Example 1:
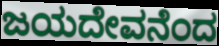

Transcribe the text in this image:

ಜಯದೇವನೆಂದ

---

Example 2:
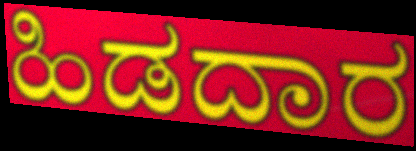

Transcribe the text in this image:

ಹಿಡದಾರ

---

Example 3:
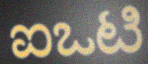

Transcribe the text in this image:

ಐಒಟಿ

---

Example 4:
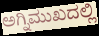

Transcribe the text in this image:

ಅಗ್ನಿಮುಖದಲ್ಲಿ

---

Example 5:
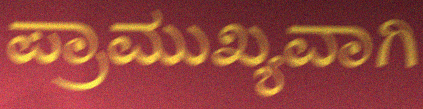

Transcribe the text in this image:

ಪ್ರಾಮುಖ್ಯವಾಗಿ